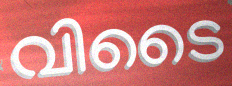
വിടൈ